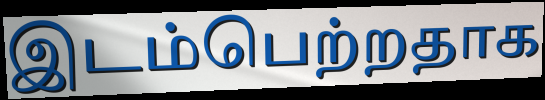
இடம்பெற்றதாக